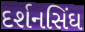
દર્શનસિંઘ